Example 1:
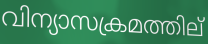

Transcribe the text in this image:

വിന്യാസക്രമത്തില്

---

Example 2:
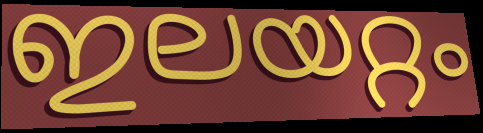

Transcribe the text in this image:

ഇലയറ്റം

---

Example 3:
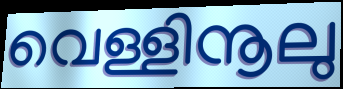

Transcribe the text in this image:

വെള്ളിനൂലു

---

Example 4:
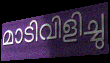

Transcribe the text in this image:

മാടിവിളിച്ചു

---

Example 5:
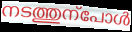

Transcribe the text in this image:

നടത്തുന്പോൾ